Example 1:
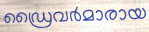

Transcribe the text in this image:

ഡ്രൈവർമാരായ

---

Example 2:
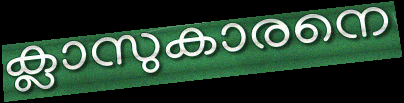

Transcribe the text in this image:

ക്ലാസുകാരനെ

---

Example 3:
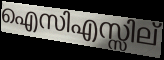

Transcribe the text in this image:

ഐസിഎസ്സില്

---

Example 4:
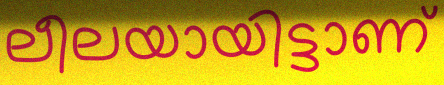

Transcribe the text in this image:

ലീലയായിട്ടാണ്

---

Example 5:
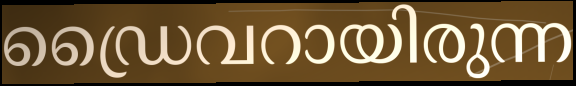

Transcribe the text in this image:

ഡ്രൈവറായിരുന്ന